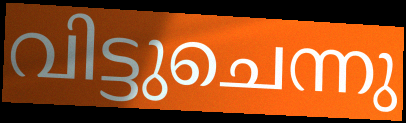
വിട്ടുചെന്നു